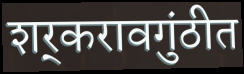
शर्करावगुंठीत